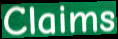
Claims